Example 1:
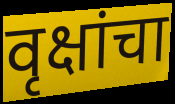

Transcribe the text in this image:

वृक्षांचा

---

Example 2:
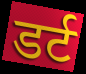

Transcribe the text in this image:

डर्ट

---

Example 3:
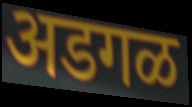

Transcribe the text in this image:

अडगळ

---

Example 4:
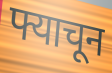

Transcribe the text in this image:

फ्याचून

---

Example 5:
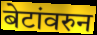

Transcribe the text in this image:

बेटांवरुन